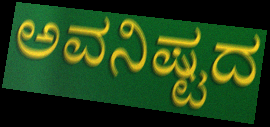
ಅವನಿಷ್ಟದ